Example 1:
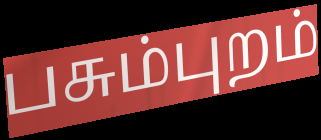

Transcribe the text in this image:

பசும்புறம்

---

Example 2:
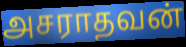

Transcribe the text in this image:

அசராதவன்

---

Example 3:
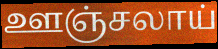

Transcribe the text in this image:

ஊஞ்சலாய்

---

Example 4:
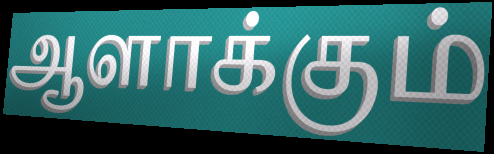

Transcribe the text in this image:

ஆளாக்கும்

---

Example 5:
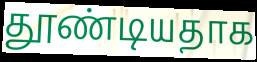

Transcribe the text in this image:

தூண்டியதாக